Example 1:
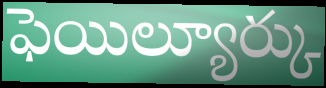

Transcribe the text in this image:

ఫెయిల్యూర్కు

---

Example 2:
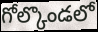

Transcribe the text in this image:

గోల్కొండలో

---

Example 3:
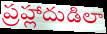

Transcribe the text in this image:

ప్రహ్లాదుడిలా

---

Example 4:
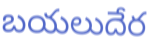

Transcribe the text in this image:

బయలుదేర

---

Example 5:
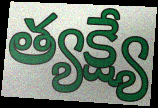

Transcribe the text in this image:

త్యక్ష్యే